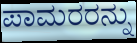
ಪಾಮರರನ್ನು